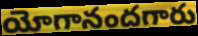
యోగానందగారు